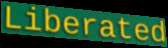
Liberated